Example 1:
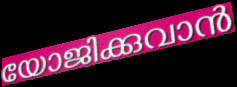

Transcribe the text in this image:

യോജിക്കുവാൻ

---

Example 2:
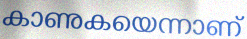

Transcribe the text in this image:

കാണുകയെന്നാണ്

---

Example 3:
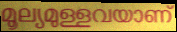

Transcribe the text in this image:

മൂല്യമുള്ളവയാണ്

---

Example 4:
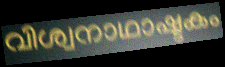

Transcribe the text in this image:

വിശ്വനാഥാഷ്ടകം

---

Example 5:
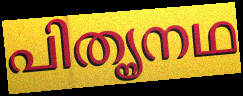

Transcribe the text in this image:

പിതൄനഥ